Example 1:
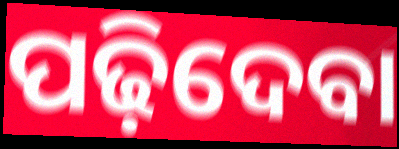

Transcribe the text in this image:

ପଢ଼ିଦେବା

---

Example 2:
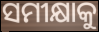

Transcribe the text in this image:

ସମୀକ୍ଷାକୁ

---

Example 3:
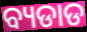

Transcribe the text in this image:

ବ୍ୟଡାଡ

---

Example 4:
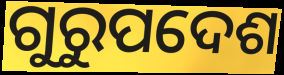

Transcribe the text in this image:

ଗୁରୁପଦେଶ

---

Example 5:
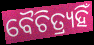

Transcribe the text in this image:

ବୈଚିତ୍ର୍ୟହିଁ